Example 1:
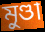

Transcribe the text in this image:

মুণ্ডা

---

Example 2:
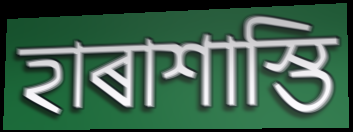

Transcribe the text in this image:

হাৰাশাস্তি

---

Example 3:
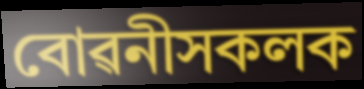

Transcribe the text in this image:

বোৱনীসকলক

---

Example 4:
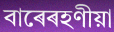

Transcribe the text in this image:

বাৰেৰহণীয়া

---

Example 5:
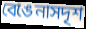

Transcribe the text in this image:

বেঙেনাসদৃশ